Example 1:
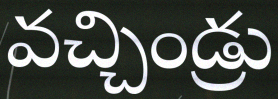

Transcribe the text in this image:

వచ్చిండ్రు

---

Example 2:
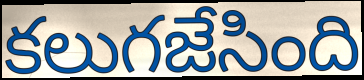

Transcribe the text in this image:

కలుగజేసింది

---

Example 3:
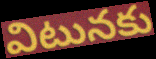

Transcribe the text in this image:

విటునకు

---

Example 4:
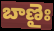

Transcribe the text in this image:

బాణైః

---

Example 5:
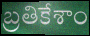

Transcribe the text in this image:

బ్రతికేశాం